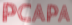
PCAPA